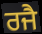
ਰਜੈ